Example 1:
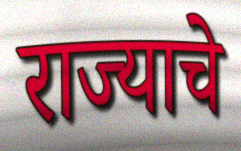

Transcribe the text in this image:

राज्याचे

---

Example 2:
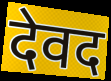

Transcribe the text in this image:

देवद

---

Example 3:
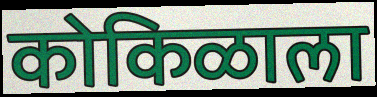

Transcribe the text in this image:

कोकिळाला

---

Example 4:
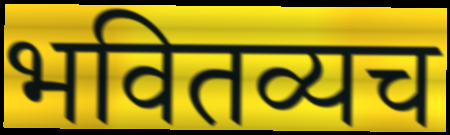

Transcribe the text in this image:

भवितव्यच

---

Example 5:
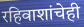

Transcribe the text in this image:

रहिवाशांचेही